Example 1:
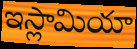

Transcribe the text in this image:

ఇస్లామియా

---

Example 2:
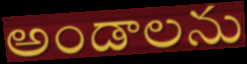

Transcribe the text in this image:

అండాలను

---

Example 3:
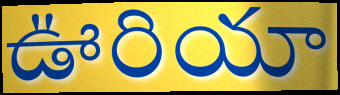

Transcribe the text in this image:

ఊరియా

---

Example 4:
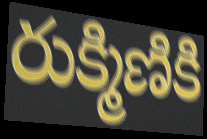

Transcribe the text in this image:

రుక్మిణికి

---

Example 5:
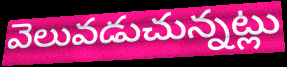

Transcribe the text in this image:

వెలువడుచున్నట్లు